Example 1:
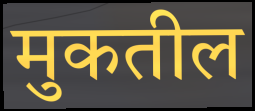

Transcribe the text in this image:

मुकतील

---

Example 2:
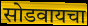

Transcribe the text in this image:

सोडवायचा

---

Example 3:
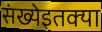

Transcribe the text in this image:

संख्येइतक्या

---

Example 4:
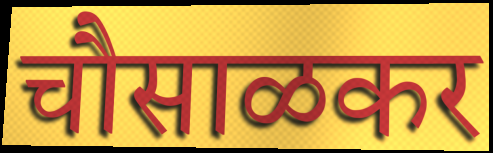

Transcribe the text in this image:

चौसाळकर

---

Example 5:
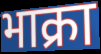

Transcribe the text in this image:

भाक्रा